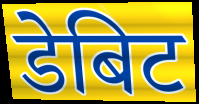
डेबिट